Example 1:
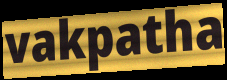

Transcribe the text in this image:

vakpatha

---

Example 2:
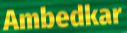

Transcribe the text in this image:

Ambedkar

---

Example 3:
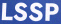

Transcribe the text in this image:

LSSP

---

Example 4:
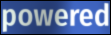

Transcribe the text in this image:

powered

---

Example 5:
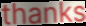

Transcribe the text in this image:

thanks